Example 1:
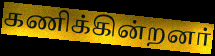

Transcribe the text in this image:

கணிக்கின்றனர்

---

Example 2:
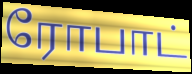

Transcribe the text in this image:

ரோபாட்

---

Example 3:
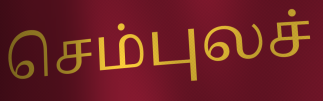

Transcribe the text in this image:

செம்புலச்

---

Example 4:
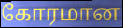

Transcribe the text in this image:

கோரமான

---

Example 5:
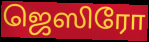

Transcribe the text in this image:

ஜெஸிரோ